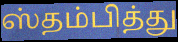
ஸ்தம்பித்து